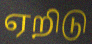
ஏறிடு